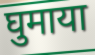
घुमाया